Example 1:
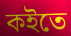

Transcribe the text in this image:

কইতে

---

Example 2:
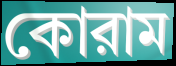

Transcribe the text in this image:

কোরাম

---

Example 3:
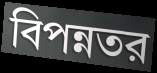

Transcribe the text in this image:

বিপন্নতর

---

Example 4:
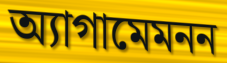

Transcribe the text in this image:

অ্যাগামেমনন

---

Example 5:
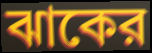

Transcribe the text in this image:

ঝাকের